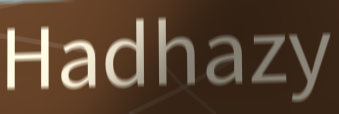
Hadhazy